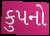
કુપનો